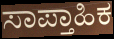
ಸಾಪ್ತಾಹಿಕ